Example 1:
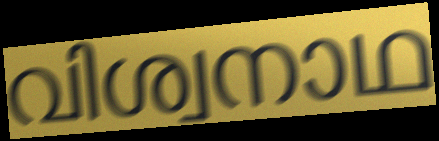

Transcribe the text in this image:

വിശ്വനാഥ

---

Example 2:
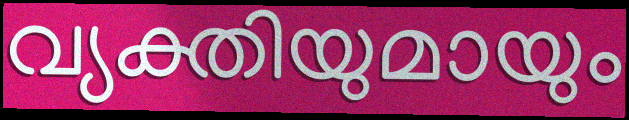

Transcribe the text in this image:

വ്യക്തിയുമായും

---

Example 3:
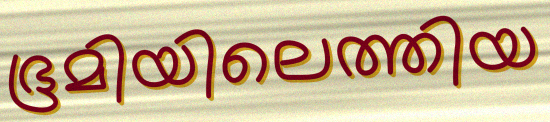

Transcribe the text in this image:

ഭൂമിയിലെത്തിയ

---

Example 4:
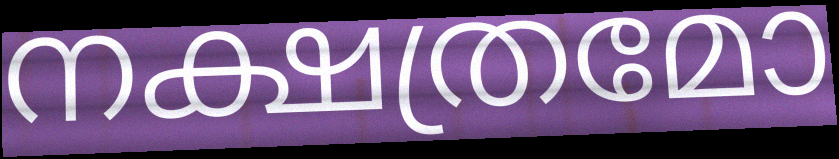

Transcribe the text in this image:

നക്ഷത്രമോ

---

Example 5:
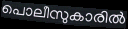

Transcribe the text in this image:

പൊലീസുകാരിൽ